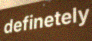
definetely